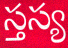
స్తస్య